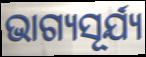
ଭାଗ୍ୟସୂର୍ଯ୍ୟ